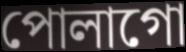
পোলাগো